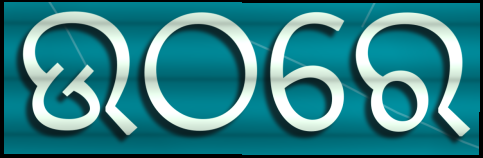
ଉଠରେ